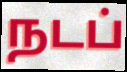
நடப்